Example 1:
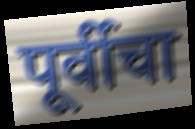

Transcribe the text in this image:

पूर्वीचा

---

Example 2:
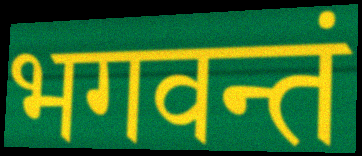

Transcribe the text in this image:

भगवन्तं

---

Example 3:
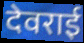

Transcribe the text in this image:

देवराई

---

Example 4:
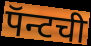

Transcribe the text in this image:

पॅन्टची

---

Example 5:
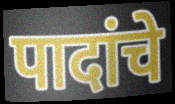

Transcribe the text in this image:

पादांचे